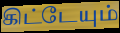
கிட்டேயும்